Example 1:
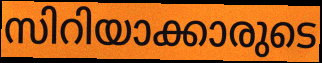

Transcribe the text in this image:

സിറിയാക്കാരുടെ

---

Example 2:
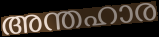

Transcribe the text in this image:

അന്തഹാര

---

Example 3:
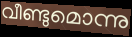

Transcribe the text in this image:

വീണ്ടുമൊന്നു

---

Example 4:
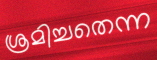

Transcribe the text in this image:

ശ്രമിച്ചതെന്ന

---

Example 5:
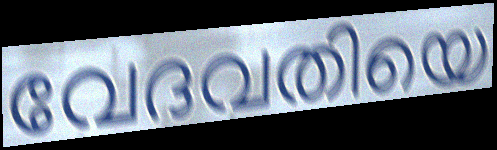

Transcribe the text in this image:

വേദവതിയെ